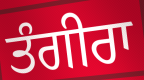
ਤੰਗੀਰਾ